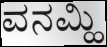
ವನಮ್ಹಿ